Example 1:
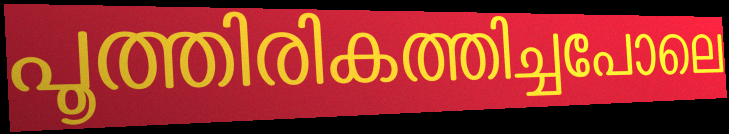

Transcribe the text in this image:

പൂത്തിരികത്തിച്ചപോലെ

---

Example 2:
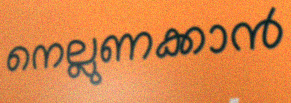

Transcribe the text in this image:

നെല്ലുണക്കാൻ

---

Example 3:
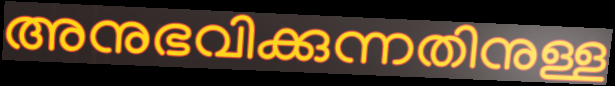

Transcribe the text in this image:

അനുഭവിക്കുന്നതിനുള്ള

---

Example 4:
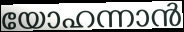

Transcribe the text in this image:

യോഹന്നാൻ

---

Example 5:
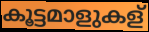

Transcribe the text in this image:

കൂട്ടമാളുകള്